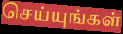
செய்யுங்கள்